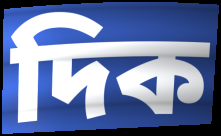
দিক